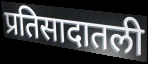
प्रतिसादातली